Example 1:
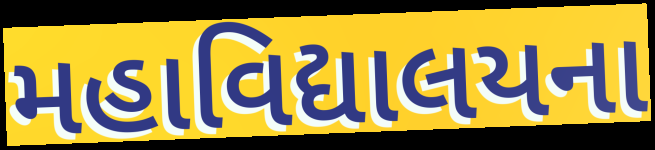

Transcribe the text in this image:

મહાવિદ્યાલયના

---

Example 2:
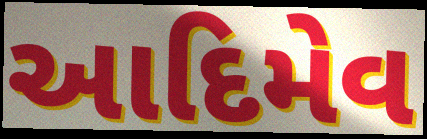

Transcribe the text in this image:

આદિમેવ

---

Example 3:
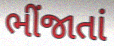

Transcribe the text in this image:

ભીંજાતાં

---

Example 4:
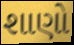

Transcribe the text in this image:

શાણો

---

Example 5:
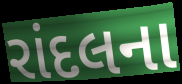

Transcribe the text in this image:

રાંદલના